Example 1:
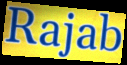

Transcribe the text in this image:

Rajab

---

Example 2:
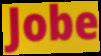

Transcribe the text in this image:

Jobe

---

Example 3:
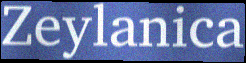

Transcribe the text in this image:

Zeylanica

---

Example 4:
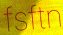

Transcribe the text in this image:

fsftn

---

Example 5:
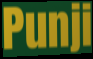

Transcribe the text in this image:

Punji